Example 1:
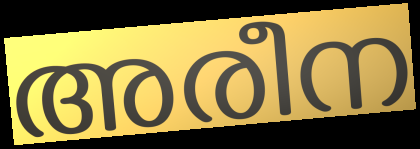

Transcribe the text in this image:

അരീന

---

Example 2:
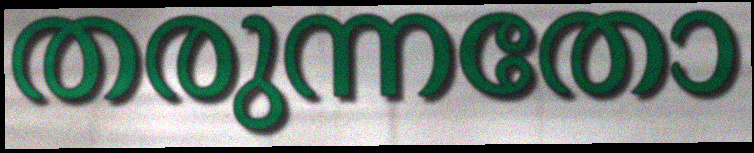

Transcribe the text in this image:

തരുന്നതോ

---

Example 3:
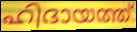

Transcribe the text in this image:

ഹിദായത്ത്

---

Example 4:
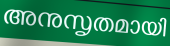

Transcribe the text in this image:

അനുസൃതമായി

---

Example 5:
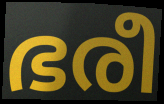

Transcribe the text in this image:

ഭരീ